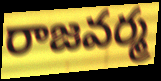
రాజవర్మ